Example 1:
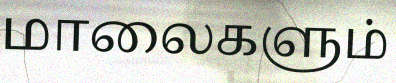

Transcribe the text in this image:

மாலைகளும்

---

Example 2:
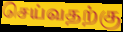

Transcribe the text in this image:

செய்வதற்கு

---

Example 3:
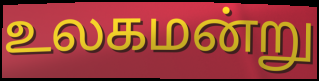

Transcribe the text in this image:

உலகமன்று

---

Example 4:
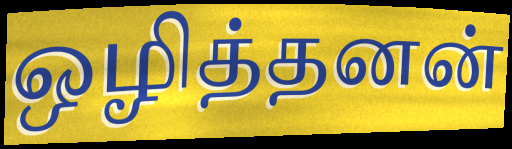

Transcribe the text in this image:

ஒழித்தனன்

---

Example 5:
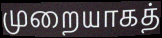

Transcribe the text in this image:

முறையாகத்